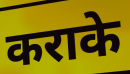
कराके